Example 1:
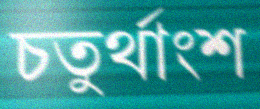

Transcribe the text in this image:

চতুর্থাংশ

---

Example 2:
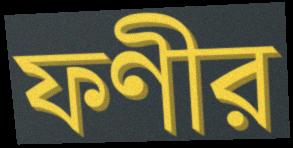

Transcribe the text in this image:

ফণীর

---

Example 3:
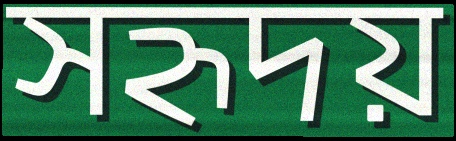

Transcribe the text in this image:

সহৃদয়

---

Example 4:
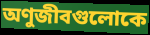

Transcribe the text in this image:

অণুজীবগুলোকে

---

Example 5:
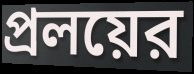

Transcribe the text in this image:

প্রলয়ের